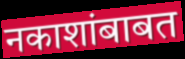
नकाशांबाबत